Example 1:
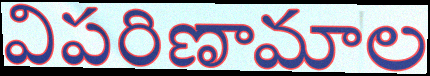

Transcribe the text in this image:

విపరిణామాల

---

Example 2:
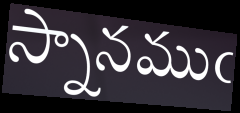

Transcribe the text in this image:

స్నానముఁ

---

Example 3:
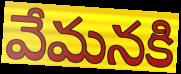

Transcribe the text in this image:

వేమనకి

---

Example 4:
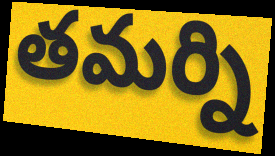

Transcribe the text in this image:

తమర్ని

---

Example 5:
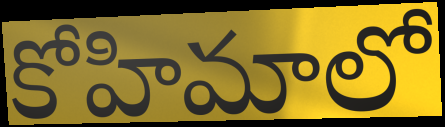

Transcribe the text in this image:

కోహిమాలో